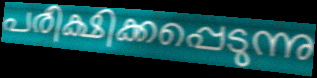
പരീക്ഷിക്കപ്പെടുന്നു